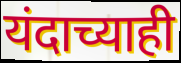
यंदाच्याही